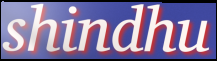
shindhu